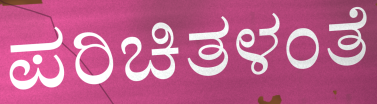
ಪರಿಚಿತಳಂತೆ